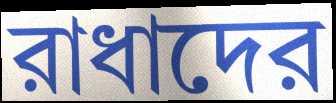
রাধাদের